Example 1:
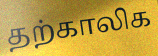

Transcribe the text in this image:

தற்காலிக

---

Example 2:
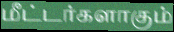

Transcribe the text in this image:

மீட்டர்களாகும்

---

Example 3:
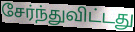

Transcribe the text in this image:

சேர்ந்துவிட்டது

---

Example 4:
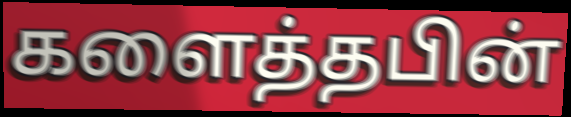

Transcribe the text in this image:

களைத்தபின்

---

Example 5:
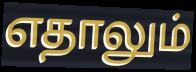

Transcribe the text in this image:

எதாலும்